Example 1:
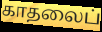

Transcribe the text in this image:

காதலைப்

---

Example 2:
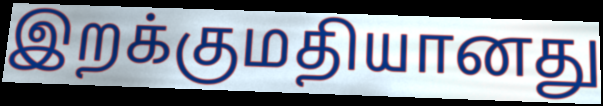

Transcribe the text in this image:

இறக்குமதியானது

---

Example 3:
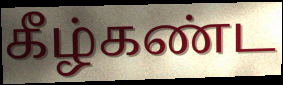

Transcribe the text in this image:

கீழ்கண்ட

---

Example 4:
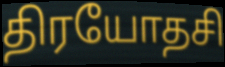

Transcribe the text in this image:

திரயோதசி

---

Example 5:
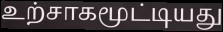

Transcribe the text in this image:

உற்சாகமூட்டியது